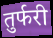
तुर्फरी